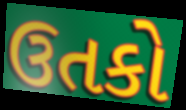
ઉતકો